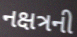
નક્ષત્રની